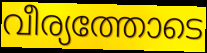
വീര്യത്തോടെ